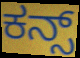
ಕನ್ಸ್